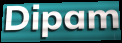
Dipam